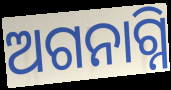
ଅଗନାଗ୍ନି